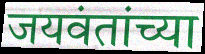
जयवंतांच्या